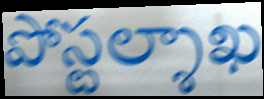
పోస్టల్శాఖ